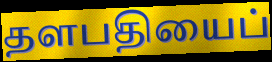
தளபதியைப்